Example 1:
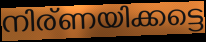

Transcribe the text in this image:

നിര്ണയിക്കട്ടെ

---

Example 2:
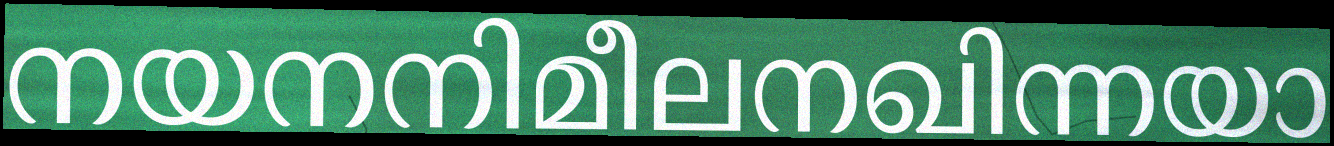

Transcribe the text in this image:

നയനനിമീലനഖിന്നയാ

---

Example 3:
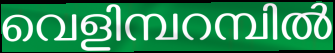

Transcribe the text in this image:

വെളിമ്പറമ്പിൽ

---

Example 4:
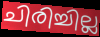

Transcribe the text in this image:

ചിരിച്ചില്ല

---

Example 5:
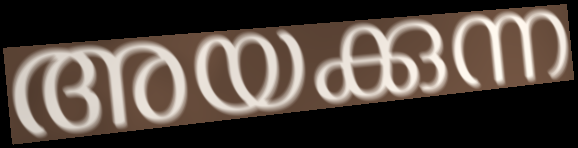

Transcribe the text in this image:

അയക്കുന്ന